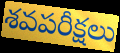
శవపరీక్షలు